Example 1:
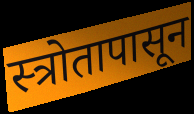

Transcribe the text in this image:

स्त्रोतापासून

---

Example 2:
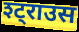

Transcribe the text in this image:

श्ट्राउस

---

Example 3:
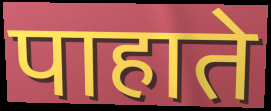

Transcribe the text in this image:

पाहाते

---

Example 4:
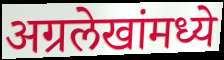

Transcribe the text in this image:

अग्रलेखांमध्ये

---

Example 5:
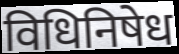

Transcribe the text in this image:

विधिनिषेध